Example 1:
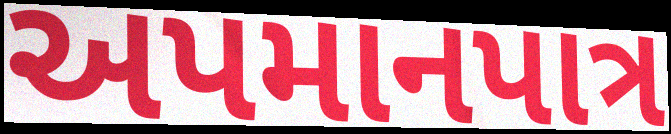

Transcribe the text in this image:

અપમાનપાત્ર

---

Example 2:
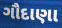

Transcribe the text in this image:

ગૌદાણા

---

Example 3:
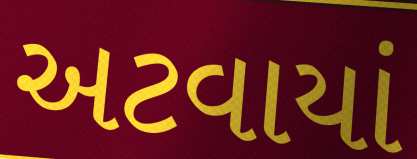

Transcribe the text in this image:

અટવાયાં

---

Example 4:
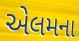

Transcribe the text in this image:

એલમના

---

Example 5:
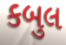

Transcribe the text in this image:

કબુલ